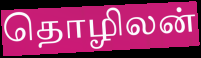
தொழிலன்